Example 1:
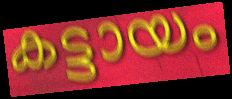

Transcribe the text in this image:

കട്ടായം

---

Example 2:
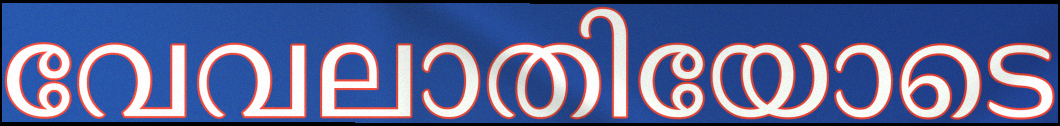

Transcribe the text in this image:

വേവലാതിയോടെ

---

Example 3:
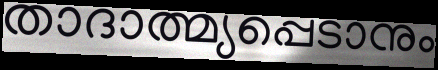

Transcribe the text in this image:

താദാത്മ്യപ്പെടാനും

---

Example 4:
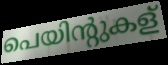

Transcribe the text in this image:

പെയിന്റുകള്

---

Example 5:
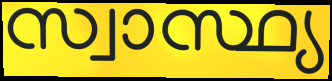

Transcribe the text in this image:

സ്വാസ്ഥ്യ